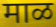
माळ